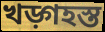
খড়্গহস্ত